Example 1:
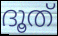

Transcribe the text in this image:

ദൂത്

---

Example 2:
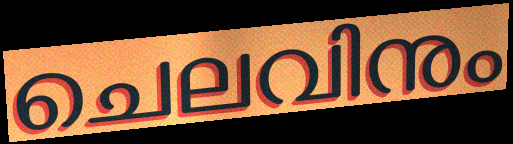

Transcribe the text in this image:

ചെലവിനും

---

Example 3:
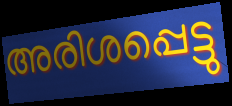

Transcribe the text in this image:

അരിശപ്പെട്ടു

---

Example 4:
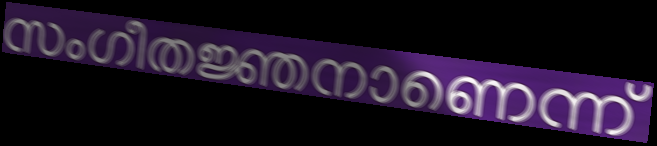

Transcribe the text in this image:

സംഗീതജ്ഞനാണെന്ന്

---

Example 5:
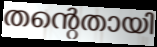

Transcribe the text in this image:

തന്റെതായി